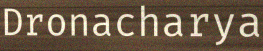
Dronacharya